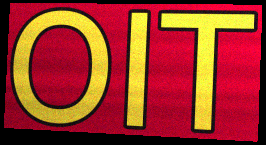
OIT